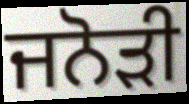
ਜਨੋੜੀ